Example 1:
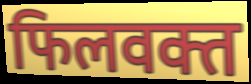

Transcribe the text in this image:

फिलवक्‍त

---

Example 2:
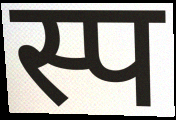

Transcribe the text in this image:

स्प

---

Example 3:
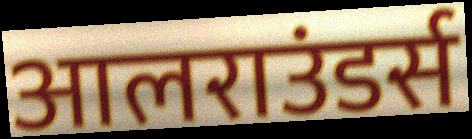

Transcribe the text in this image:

आलराउंडर्स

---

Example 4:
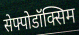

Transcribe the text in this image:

सेफ्पोडॉक्सिम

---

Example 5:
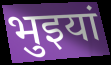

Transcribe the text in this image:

भुइयां